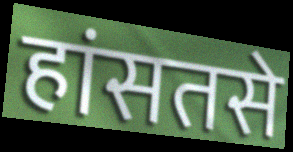
हांसतसे